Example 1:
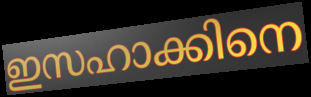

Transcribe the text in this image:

ഇസഹാക്കിനെ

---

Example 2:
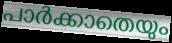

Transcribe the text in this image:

പാർക്കാതെയും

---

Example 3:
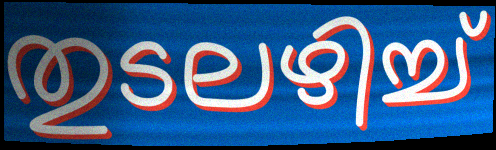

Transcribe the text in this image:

തുടലഴിച്ച്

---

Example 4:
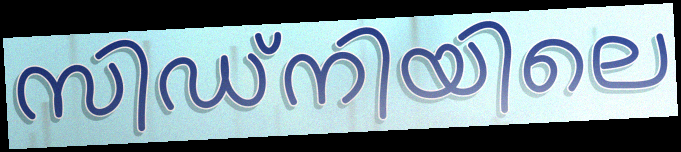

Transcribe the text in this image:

സിഡ്നിയിലെ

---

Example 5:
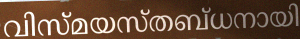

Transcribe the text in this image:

വിസ്മയസ്തബ്ധനായി